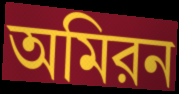
অমিরন